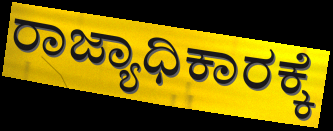
ರಾಜ್ಯಾಧಿಕಾರಕ್ಕೆ